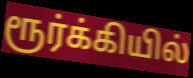
ரூர்க்கியில்